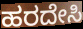
ಹರದೇಸಿ